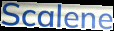
Scalene